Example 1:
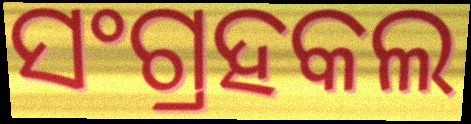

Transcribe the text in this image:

ସଂଗ୍ରହକଲ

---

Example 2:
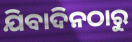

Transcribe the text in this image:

ଯିବାଦିନଠାରୁ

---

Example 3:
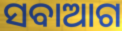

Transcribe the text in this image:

ସବାଆଗ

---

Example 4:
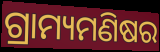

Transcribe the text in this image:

ଗ୍ରାମ୍ୟମଣିଷର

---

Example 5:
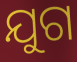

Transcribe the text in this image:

ଯୁଗ